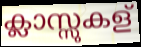
ക്ലാസ്സുകള്